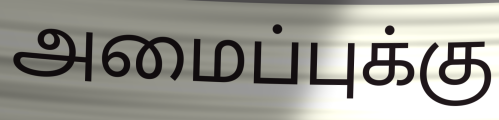
அமைப்புக்கு